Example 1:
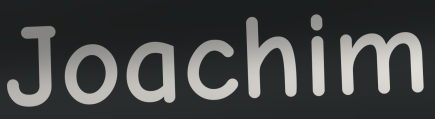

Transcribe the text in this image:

Joachim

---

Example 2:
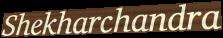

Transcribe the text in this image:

Shekharchandra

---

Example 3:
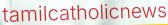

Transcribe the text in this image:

tamilcatholicnews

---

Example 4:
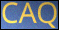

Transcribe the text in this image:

CAQ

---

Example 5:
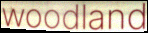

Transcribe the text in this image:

woodland